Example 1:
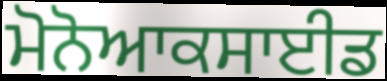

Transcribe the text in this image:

ਮੋਨੋਆਕਸਾਈਡ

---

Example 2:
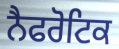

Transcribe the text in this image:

ਨੈਫਰੋਟਿਕ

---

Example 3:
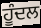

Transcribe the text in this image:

ਹੂੰਦਲ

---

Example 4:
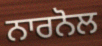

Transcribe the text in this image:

ਨਾਰਨੋਲ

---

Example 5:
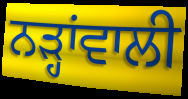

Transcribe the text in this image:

ਨੜ੍ਹਾਂਵਾਲੀ